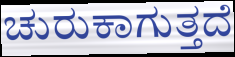
ಚುರುಕಾಗುತ್ತದೆ